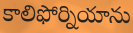
కాలిఫోర్నియాను